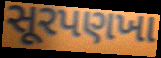
સૂરપણખા